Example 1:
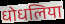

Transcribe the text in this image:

धोधलिया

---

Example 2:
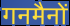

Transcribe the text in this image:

गनमैनों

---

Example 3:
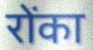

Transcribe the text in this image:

रोंका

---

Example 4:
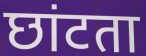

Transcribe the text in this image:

छांटता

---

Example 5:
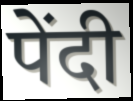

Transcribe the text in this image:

पेंदी